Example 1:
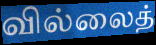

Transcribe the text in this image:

வில்லைத்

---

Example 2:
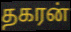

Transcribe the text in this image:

தகரன்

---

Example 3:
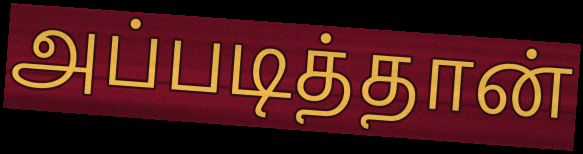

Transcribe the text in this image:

அப்படித்தான்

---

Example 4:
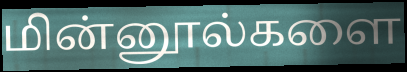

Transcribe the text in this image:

மின்னூல்களை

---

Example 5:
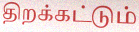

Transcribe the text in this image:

திறக்கட்டும்